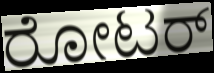
ರೋಟರ್